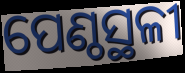
ପେଣ୍ଠସ୍ଥଳୀ